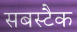
सबस्टैक